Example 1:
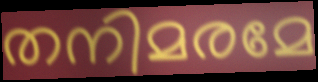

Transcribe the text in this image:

തനിമരമേ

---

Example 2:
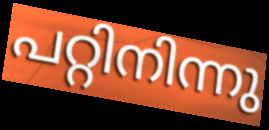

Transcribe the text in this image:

പറ്റിനിന്നു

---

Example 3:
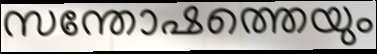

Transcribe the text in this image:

സന്തോഷത്തെയും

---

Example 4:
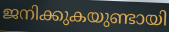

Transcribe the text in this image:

ജനിക്കുകയുണ്ടായി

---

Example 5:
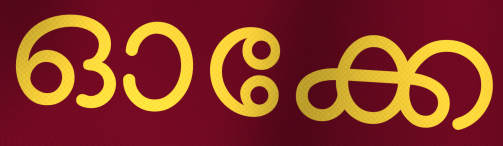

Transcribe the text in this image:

ഓക്കേ